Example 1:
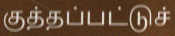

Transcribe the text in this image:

குத்தப்பட்டுச்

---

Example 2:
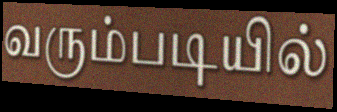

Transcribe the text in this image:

வரும்படியில்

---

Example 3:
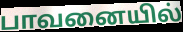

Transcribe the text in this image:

பாவனையில்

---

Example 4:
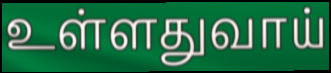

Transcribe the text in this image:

உள்ளதுவாய்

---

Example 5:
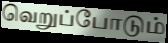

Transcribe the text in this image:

வெறுப்போடும்